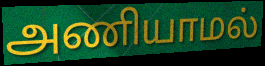
அணியாமல்